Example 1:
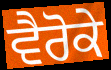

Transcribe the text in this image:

ਵੈਰੋਕੇ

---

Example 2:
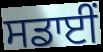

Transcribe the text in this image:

ਸਡਾਈਂ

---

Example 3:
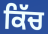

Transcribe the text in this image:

ਕਿੱਚ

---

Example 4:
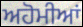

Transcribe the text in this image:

ਅਹੋਮੀਆਂ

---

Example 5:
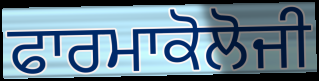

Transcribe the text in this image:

ਫਾਰਮਾਕੋਲੋਜੀ